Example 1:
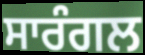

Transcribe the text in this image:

ਸਾਰੰਗਲ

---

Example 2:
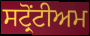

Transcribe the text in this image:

ਸਟ੍ਰੋਂਟੀਅਮ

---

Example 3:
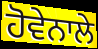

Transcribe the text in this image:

ਹੋਵੇਨਾਲੇ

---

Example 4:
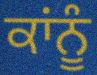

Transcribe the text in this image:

ਕਾਂਨੂੰ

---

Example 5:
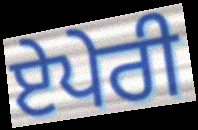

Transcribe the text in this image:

ਏਪੇਰੀ